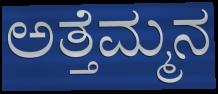
ಅತ್ತೆಮ್ಮನ